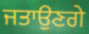
ਜਤਾਉਣਗੇ